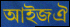
আইজঐ